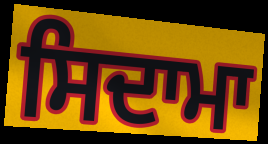
ਸਿਦਾਮਾ